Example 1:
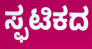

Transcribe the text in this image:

ಸ್ಫಟಿಕದ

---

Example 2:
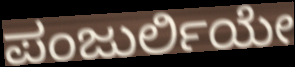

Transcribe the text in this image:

ಪಂಜುರ್ಲಿಯೇ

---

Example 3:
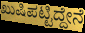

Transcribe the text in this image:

ಖುಷಿಪಟ್ಟಿದ್ದೇನೆ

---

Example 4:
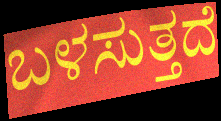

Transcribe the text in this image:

ಬಳಸುತ್ತದೆ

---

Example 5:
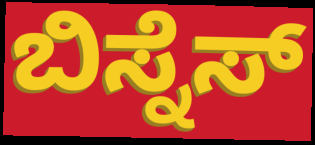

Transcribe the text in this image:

ಬಿಸ್ನೆಸ್